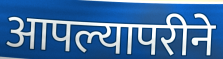
आपल्यापरीने